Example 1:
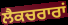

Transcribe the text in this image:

ਲੈਕਚਰਾਰਾਂ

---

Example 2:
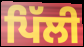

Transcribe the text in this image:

ਪਿੱਲੀ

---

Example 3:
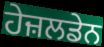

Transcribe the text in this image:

ਹੇਜ਼ਲਡੇਨ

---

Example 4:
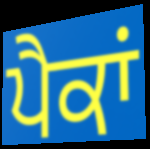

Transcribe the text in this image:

ਪੈਕਾਂ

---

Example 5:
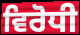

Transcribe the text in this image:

ਵਿਰੋਧੀ